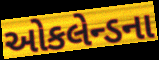
ઓકલેન્ડના